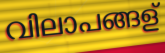
വിലാപങ്ങള്